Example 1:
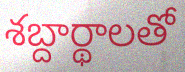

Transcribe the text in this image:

శబ్దార్థాలతో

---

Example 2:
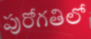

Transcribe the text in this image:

పురోగతిలో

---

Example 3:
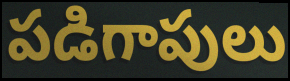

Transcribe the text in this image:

పడిగాపులు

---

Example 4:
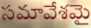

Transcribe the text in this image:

సమావేశమై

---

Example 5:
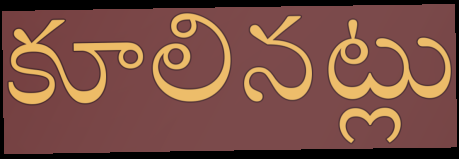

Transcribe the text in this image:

కూలినట్లు